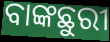
ବାଙ୍କଛୁରୀ